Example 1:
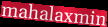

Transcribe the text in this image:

mahalaxmin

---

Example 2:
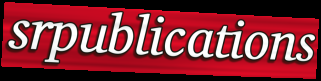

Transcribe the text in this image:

srpublications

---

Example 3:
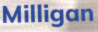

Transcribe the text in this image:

Milligan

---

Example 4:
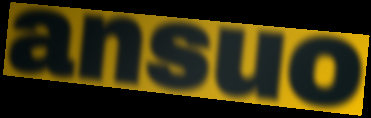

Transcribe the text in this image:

ansuo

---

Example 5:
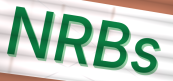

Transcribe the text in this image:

NRBs